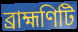
ব্রাহ্মণিটি